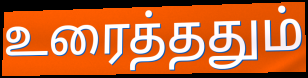
உரைத்ததும்